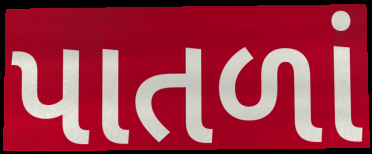
પાતળાં